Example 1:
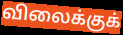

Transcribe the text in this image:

விலைக்குக்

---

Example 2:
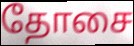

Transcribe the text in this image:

தோசை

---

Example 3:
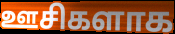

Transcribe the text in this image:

ஊசிகளாக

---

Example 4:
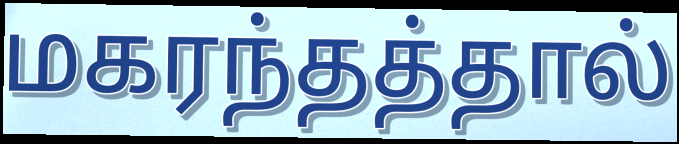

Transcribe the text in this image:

மகரந்தத்தால்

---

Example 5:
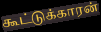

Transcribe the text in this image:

கூட்டுக்காரன்